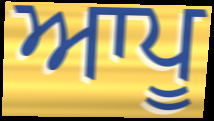
ਆਪੂ